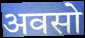
अवसो